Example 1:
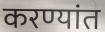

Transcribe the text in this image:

करण्यांत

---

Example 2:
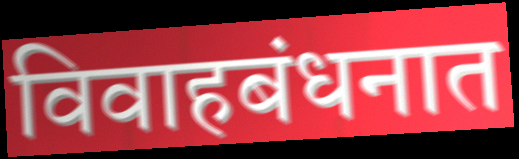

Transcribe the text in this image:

विवाहबंधनात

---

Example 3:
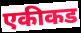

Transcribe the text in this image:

एकीकड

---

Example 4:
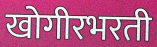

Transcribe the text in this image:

खोगीरभरती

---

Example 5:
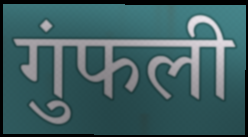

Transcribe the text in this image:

गुंफली